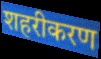
शहरीकरण